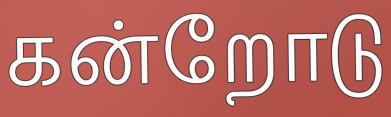
கன்றோடு